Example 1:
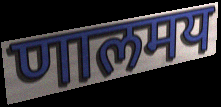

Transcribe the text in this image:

णालमय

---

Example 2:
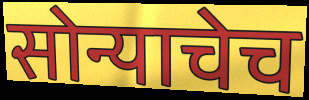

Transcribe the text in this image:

सोन्याचेच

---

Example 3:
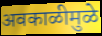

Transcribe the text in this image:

अवकाळीमुळे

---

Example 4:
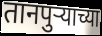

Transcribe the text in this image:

तानपुऱ्याच्या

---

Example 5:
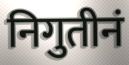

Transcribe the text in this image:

निगुतीनं